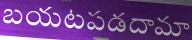
బయటపడదామా